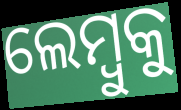
ଲେମ୍ବୁକୁ